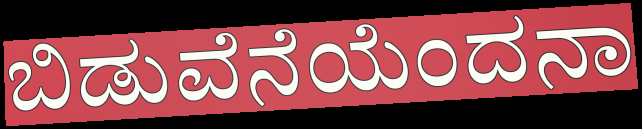
ಬಿಡುವೆನೆಯೆಂದನಾ